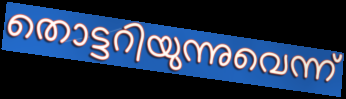
തൊട്ടറിയുന്നുവെന്ന്